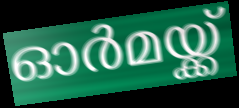
ഓർമയ്ക്ക്